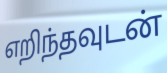
எறிந்தவுடன்